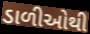
ડાળીઓથી